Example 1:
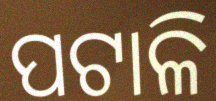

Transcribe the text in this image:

ପଟାଳି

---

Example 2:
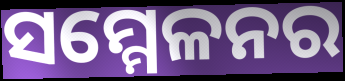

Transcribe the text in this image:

ସମ୍ମେଳନର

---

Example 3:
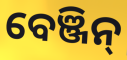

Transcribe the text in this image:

ବେଞ୍ଜିନ୍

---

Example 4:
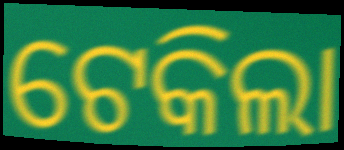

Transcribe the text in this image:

ଟେକିଲା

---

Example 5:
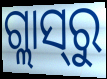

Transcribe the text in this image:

ଗ୍ଲାସ୍‍ରୁ